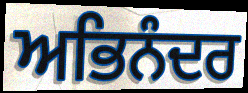
ਅਭਿਨੰਦਰ